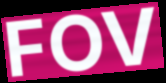
FOV